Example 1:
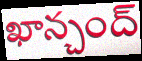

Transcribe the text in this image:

ఖాన్చంద్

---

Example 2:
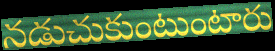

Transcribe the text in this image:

నడుచుకుంటుంటారు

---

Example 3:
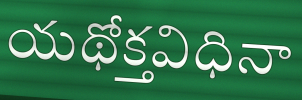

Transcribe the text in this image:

యథోక్తవిధినా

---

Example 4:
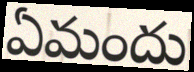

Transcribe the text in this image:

ఏమందు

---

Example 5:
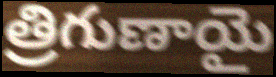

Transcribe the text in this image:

త్రిగుణాయై